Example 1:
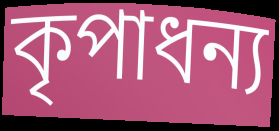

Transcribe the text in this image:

কৃপাধন্য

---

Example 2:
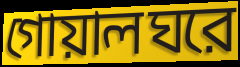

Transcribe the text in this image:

গোয়ালঘরে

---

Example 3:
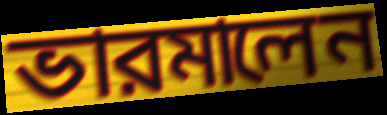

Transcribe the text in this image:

ভারমালেন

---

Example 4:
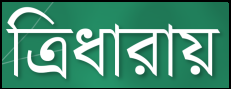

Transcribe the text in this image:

ত্রিধারায়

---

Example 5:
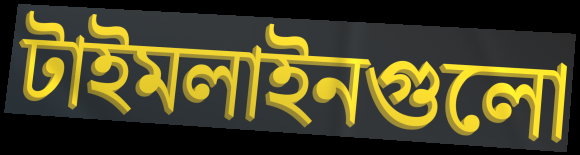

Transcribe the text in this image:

টাইমলাইনগুলো